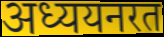
अध्ययनरत